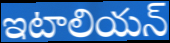
ఇటాలియన్